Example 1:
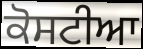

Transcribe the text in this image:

ਕੋਸਟੀਆ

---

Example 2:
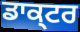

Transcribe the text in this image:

ਡਾਕ੍ਟਰ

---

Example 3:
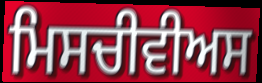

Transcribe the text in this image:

ਮਿਸਚੀਵੀਅਸ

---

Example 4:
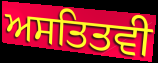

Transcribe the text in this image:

ਅਸਤਿਤਵੀ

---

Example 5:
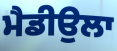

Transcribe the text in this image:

ਮੈਡੀਉਲਾ